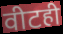
वीटही